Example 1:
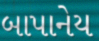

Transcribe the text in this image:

બાપાનેય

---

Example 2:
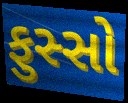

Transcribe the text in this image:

ફુસ્સો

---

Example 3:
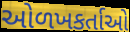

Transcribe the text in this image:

ઓળખકર્તાઓ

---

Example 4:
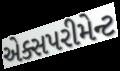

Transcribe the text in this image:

એક્સપરીમેન્ટ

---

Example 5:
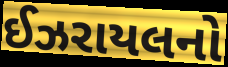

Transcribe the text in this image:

ઈઝરાયલનો